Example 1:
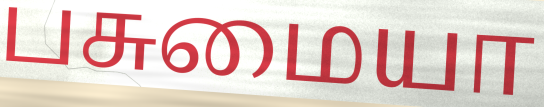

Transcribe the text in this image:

பசுமையா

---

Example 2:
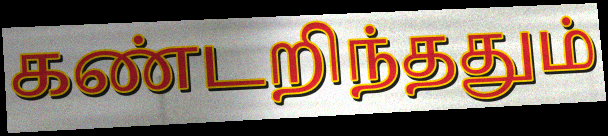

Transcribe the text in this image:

கண்டறிந்ததும்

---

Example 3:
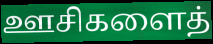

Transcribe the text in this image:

ஊசிகளைத்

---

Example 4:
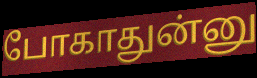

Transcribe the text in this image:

போகாதுன்னு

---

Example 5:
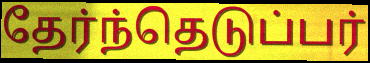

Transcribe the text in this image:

தேர்ந்தெடுப்பர்